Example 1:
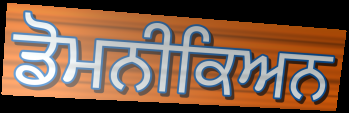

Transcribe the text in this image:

ਡੋਮਨੀਕਿਅਨ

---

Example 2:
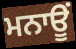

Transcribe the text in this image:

ਮਨਾਊਂ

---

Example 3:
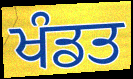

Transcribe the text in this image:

ਖੰਡਤ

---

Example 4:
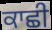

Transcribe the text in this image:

ਕਾਛੀ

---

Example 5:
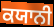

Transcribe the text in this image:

ਕਯਾਨੀ